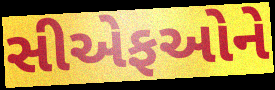
સીએફઓને